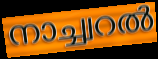
നാച്ച്വറൽ